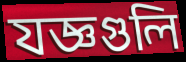
যজ্ঞগুলি